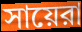
সায়েরা